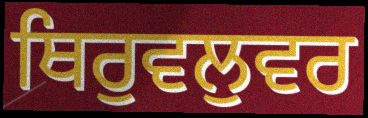
ਥਿਰੁਵਲੁਵਰ